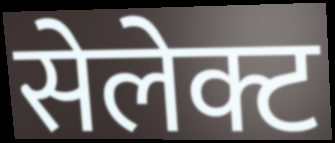
सेलेक्ट